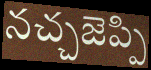
నచ్చజెప్పి